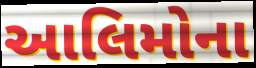
આલિમોના